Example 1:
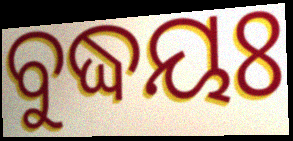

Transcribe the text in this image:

ବୁଦ୍ଧୟଃ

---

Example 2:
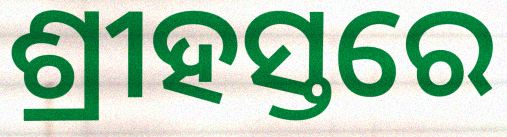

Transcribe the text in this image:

ଶ୍ରୀହସ୍ତରେ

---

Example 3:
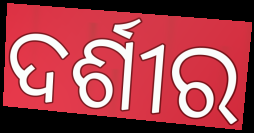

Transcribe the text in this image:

ଦର୍ଶୀର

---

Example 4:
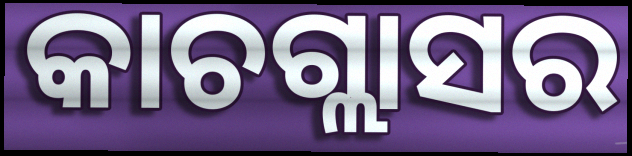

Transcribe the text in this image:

କାଚଗ୍ଲାସର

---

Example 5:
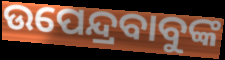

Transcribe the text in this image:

ଉପେନ୍ଦ୍ରବାବୁଙ୍କ